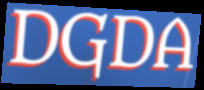
DGDA